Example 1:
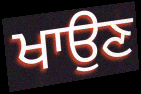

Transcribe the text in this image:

ਖਾਉਣ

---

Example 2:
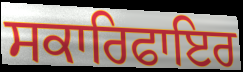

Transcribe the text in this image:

ਸਕਾਰਿਫਾਇਰ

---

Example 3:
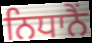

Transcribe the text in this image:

ਨਿਧਾਨੈਂ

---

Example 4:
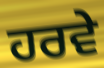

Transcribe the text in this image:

ਹਰਵੇ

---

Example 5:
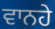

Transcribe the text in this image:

ਵਾਨਹੇ